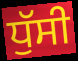
ਧੁੱਸੀ